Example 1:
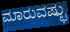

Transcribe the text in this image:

ಮಾರುವಷ್ಟು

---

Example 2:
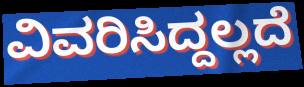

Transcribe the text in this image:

ವಿವರಿಸಿದ್ದಲ್ಲದೆ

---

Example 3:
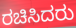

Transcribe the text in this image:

ರಚಿಸಿದರು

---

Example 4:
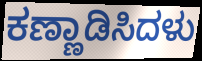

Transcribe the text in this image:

ಕಣ್ಣಾಡಿಸಿದಳು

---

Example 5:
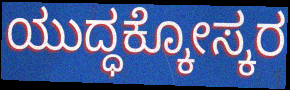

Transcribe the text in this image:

ಯುದ್ಧಕ್ಕೋಸ್ಕರ